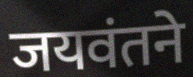
जयवंतने